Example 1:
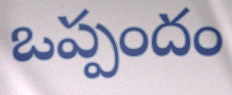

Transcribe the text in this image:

ఒప్పందం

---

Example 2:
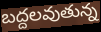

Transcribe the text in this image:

బద్దలవుతున్న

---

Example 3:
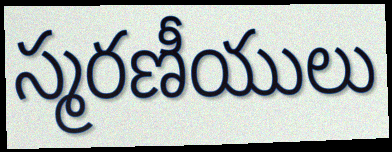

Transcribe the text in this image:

స్మరణీయులు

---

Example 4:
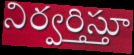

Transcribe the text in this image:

నిర్వర్తిస్తూ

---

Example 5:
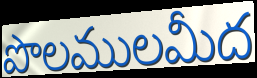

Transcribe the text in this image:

పొలములమీద